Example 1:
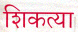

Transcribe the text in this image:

शिकत्या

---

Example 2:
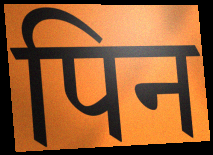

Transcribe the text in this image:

पिन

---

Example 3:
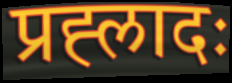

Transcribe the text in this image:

प्रह्लादः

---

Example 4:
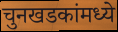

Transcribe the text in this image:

चुनखडकांमध्ये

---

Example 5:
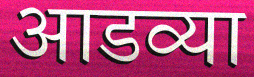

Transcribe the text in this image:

आडव्या